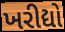
ખરીદ્યો